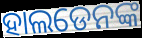
ହାଲଡେନଙ୍କ